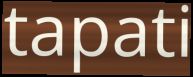
tapati